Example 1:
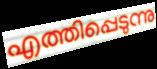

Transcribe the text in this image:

എത്തിപ്പെടുന്നു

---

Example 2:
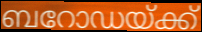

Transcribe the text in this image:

ബറോഡയ്ക്ക്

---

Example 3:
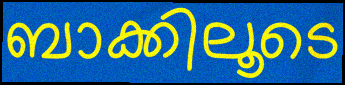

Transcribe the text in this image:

ബാക്കിലൂടെ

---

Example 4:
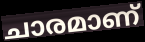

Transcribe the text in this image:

ചാരമാണ്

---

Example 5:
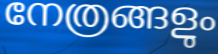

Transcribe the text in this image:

നേത്രങ്ങളും